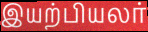
இயற்பியலர்